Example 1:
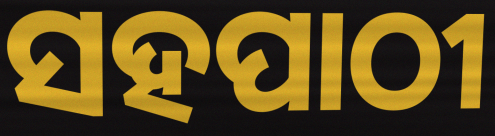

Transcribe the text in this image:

ସହପାଠୀ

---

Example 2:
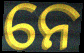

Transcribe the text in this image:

ନେ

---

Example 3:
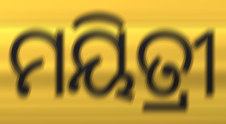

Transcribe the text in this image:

ମୟିତ୍ରୀ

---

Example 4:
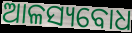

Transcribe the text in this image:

ଆଳସ୍ୟବୋଧ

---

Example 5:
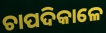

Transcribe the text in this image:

ଚାପଦିକାଳେ